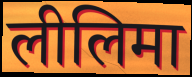
लीलिमा